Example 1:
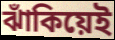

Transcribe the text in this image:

ঝাঁকিয়েই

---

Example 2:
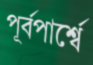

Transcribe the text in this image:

পূর্বপার্শ্বে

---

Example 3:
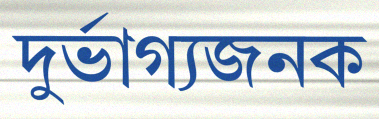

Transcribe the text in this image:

দুর্ভাগ্যজনক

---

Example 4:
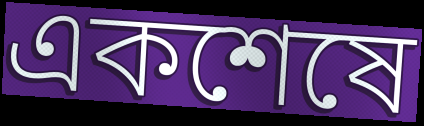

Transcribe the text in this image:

একশেষে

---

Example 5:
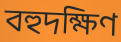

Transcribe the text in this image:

বহুদক্ষিণ